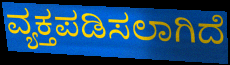
ವ್ಯಕ್ತಪಡಿಸಲಾಗಿದೆ